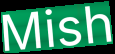
Mish